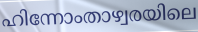
ഹിന്നോംതാഴ്വരയിലെ